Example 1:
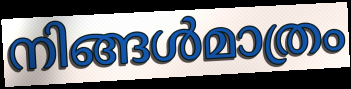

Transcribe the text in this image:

നിങ്ങൾമാത്രം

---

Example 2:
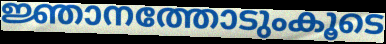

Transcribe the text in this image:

ജ്ഞാനത്തോടുംകൂടെ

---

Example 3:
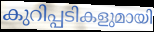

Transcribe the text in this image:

കുറിപ്പടികളുമായി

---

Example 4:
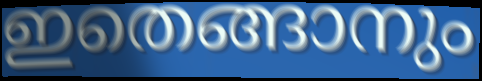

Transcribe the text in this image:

ഇതെങ്ങാനും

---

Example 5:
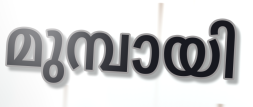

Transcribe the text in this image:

മുമ്പായി